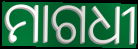
ମାଗଧୀ